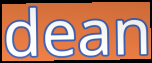
dean